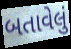
બતાવેલું